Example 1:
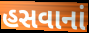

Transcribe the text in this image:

હસવાનાં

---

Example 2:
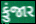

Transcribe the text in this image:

કુંજાર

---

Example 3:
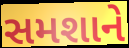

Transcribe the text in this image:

સમશાને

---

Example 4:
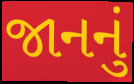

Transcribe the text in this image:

જાનનું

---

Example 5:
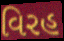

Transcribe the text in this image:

વિરહ